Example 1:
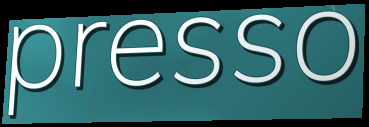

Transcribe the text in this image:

presso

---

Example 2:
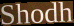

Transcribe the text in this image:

Shodh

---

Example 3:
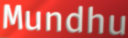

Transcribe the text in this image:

Mundhu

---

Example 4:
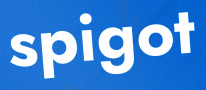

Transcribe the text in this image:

spigot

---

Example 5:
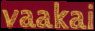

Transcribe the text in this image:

vaakai